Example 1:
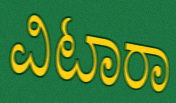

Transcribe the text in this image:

ವಿಟಾರಾ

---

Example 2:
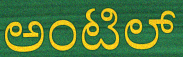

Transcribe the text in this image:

ಅಂಟಿಲ್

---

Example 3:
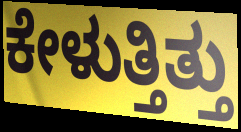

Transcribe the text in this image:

ಕೇಳುತ್ತಿತ್ತು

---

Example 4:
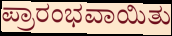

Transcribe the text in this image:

ಪ್ರಾರಂಭವಾಯಿತು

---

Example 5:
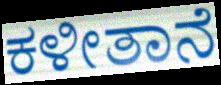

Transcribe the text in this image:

ಕಳೀತಾನೆ